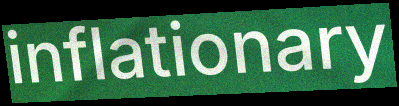
inflationary